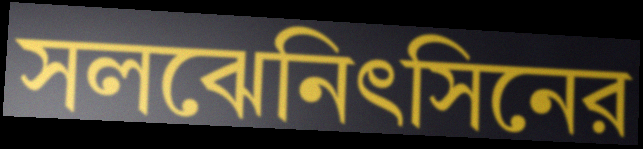
সলঝেনিৎসিনের